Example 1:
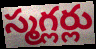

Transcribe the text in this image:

స్మగ్లర్లు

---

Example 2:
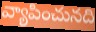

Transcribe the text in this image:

వ్యాపించునది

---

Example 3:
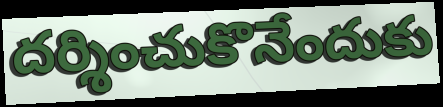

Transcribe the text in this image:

దర్శించుకొనేందుకు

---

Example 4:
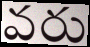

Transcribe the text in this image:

వరు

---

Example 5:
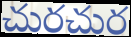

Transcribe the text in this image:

చురచుర